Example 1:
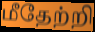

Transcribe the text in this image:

மீதேற்றி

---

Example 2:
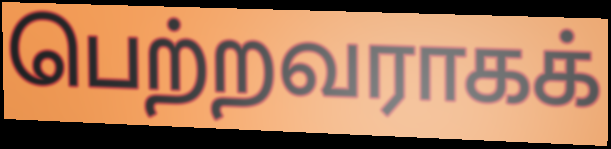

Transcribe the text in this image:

பெற்றவராகக்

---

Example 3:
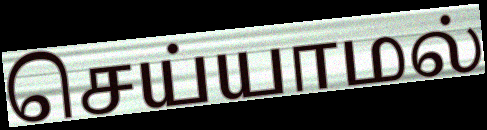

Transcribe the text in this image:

செய்யாமல்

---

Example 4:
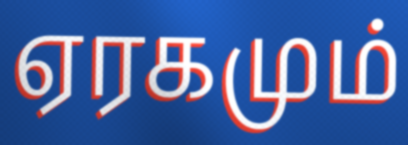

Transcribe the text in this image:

ஏரகமும்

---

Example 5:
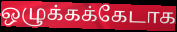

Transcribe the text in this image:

ஒழுக்கக்கேடாக